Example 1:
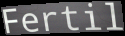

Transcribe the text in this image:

Fertil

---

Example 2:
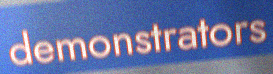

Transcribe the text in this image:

demonstrators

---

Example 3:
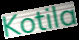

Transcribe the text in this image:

Kotila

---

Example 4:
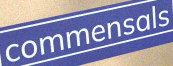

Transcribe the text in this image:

commensals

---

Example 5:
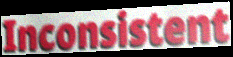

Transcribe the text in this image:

Inconsistent